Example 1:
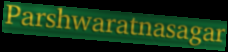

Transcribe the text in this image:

Parshwaratnasagar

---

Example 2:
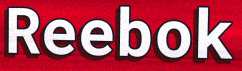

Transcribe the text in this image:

Reebok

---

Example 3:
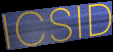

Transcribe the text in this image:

ICSID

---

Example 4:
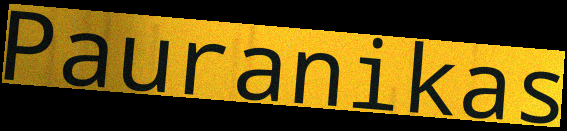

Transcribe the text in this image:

Pauranikas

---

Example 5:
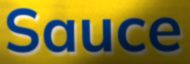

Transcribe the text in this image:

Sauce